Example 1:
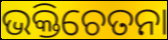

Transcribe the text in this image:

ଭକ୍ତିଚେତନା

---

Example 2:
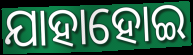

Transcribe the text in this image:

ଯାହାହୋଇ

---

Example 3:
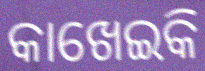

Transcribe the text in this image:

କାଖେଇକି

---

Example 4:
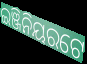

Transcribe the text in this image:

ଇଞ୍ଜିନିୟରଟେ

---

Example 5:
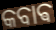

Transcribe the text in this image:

କବାଵ